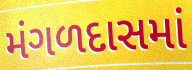
મંગળદાસમાં